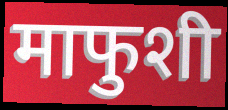
माफुशी